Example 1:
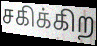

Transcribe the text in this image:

சகிக்கிற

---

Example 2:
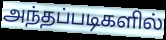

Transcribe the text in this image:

அந்தப்படிகளில்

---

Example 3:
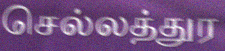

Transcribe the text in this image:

செல்லத்துர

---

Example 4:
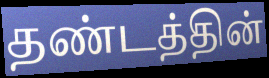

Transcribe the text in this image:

தண்டத்தின்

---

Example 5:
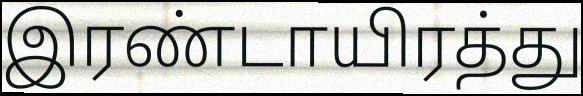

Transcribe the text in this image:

இரண்டாயிரத்து